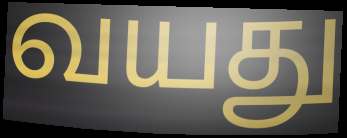
வயது